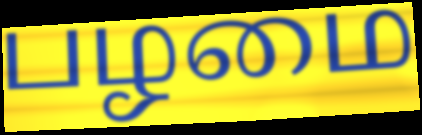
பழமை